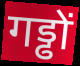
गड्ढों